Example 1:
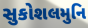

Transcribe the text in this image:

સુકોશલમુનિ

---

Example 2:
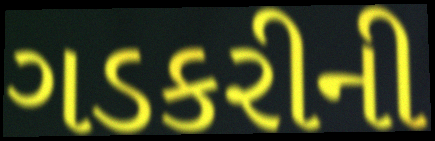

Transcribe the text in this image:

ગડકરીની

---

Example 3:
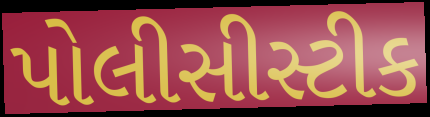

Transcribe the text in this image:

પોલીસીસ્ટીક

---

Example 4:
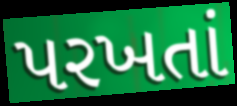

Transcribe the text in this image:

પરખતાં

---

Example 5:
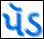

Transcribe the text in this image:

પૅડ